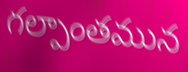
గల్పాంతమున